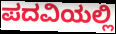
ಪದವಿಯಲ್ಲಿ